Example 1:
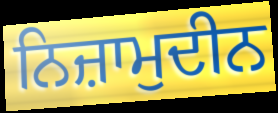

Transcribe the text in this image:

ਨਿਜ਼ਾਮੁਦੀਨ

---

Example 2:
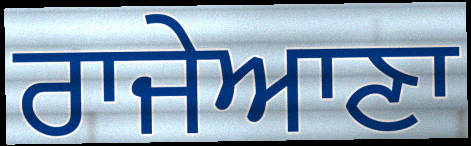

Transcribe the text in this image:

ਰਾਜੇਆਣਾ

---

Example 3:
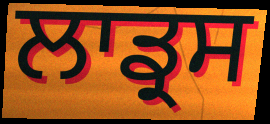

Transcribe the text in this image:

ਲਾਡ੍ਰਸ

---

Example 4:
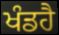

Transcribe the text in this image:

ਖੰਡਹੈ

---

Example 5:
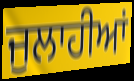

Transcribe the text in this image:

ਜੁਲਾਹੀਆਂ